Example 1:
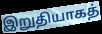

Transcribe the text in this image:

இறுதியாகத்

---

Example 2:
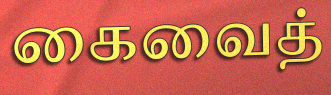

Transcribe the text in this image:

கைவைத்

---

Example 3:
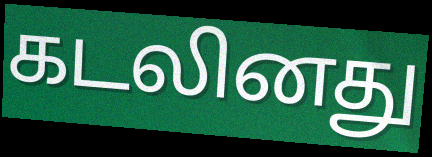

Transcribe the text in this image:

கடலினது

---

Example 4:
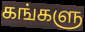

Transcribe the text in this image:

கங்களு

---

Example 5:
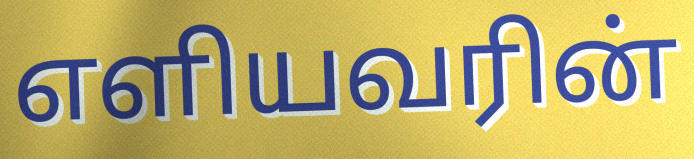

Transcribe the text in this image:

எளியவரின்